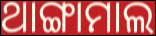
ଥାଙ୍ଗାମାଲ